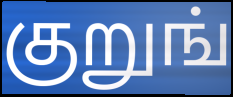
குறுங்